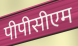
पीपीसीएम